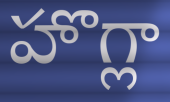
హొగ్లా